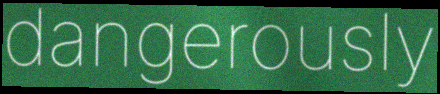
dangerously